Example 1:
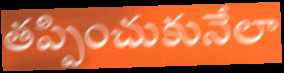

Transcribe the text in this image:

తప్పించుకునేలా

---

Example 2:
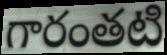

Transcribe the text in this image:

గారంతటి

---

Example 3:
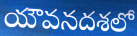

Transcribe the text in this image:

యౌవనదశలో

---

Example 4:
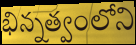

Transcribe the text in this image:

భిన్నత్వంలోని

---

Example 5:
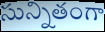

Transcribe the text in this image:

సున్నితంగా